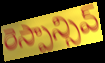
రెస్పాన్సివ్